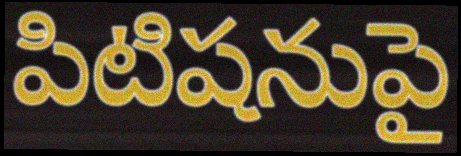
పిటిషనుపై